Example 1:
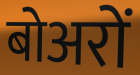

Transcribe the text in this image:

बोअरों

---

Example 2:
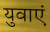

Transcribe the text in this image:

युवाएं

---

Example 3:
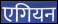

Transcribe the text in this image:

एगियन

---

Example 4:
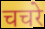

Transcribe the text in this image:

चचरे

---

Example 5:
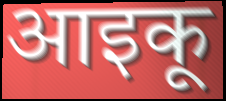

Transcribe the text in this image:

आइकू